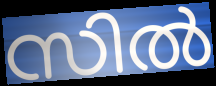
സിൽ